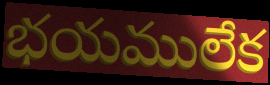
భయములేక